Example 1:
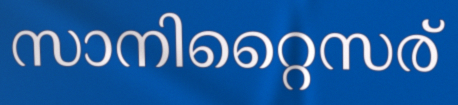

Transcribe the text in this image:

സാനിറ്റൈസര്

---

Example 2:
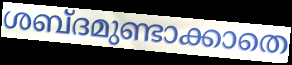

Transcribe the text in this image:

ശബ്ദമുണ്ടാക്കാതെ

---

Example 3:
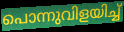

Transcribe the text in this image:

പൊന്നുവിളയിച്ച്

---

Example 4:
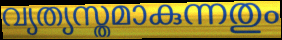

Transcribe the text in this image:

വ്യത്യസ്തമാകുന്നതും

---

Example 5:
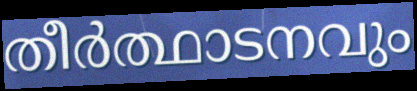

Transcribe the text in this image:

തീർത്ഥാടനവും